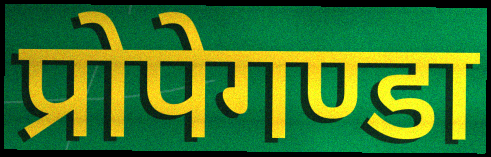
प्रोपेगण्डा